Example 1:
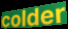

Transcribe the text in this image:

colder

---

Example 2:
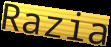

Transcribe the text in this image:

Razia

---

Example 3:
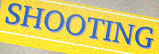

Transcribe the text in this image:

SHOOTING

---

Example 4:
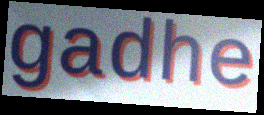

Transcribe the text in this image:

gadhe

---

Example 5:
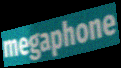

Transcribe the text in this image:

megaphone